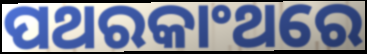
ପଥରକାଂଥରେ